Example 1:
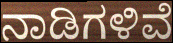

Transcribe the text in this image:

ನಾಡಿಗಳಿವೆ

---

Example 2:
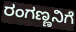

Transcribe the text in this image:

ರಂಗಣ್ಣನಿಗೆ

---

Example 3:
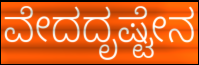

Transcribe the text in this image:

ವೇದದೃಷ್ಟೇನ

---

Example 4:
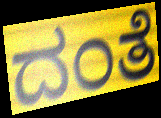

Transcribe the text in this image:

ದಂತೆ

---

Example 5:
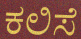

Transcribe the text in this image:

ಕಲಿಸೆ